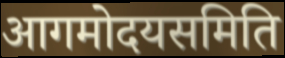
आगमोदयसमिति